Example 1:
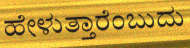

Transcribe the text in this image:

ಹೇಳುತ್ತಾರೆಂಬುದು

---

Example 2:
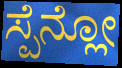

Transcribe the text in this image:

ಸ್ಪೆನ್ಲೋ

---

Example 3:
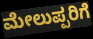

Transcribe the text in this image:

ಮೇಲುಪ್ಪರಿಗೆ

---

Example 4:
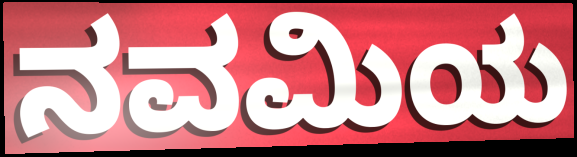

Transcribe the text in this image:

ನವಮಿಯ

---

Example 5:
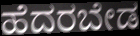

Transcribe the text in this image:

ಹೆದರಬೇಡ